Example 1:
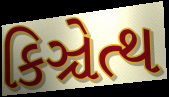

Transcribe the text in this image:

કિઞ્ચેત્થ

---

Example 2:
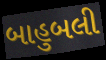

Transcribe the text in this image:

બાહુબલી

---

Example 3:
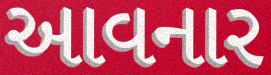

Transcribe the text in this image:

આવનાર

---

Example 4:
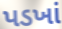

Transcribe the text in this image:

પડખાં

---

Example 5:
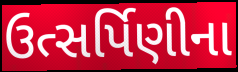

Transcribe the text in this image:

ઉત્સર્પિણીના